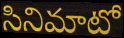
సినిమాటో